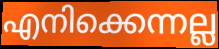
എനിക്കെന്നല്ല